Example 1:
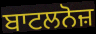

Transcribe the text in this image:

ਬਾਟਲਨੋਜ਼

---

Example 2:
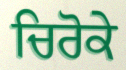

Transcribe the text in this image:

ਚਿਰੋਕੇ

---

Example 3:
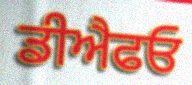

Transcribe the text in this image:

ਡੀਐਫਓ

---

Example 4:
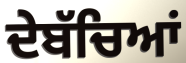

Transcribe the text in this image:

ਦੇਬੱਚਿਆਂ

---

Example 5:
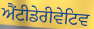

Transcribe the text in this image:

ਐਂਟੀਡੇਰੀਵੇਟਿਵ